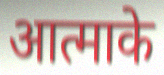
आत्माके